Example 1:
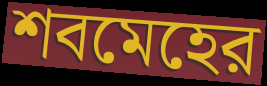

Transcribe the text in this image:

শবমেহের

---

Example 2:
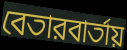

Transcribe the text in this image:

বেতারবার্তায়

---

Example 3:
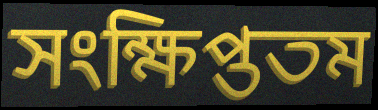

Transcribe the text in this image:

সংক্ষিপ্ততম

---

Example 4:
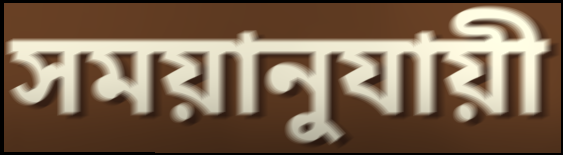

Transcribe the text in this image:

সময়ানুযায়ী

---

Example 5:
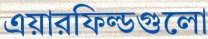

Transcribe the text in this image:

এয়ারফিল্ডগুলো